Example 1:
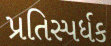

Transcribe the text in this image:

પ્રતિસ્પર્ધક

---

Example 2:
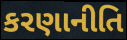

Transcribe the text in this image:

કરણાનીતિ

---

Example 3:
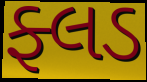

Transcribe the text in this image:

ફ્લડ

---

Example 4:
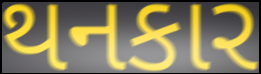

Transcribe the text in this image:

થનકાર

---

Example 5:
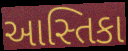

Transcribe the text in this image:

આસ્તિકા